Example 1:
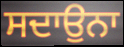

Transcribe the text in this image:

ਸਦਾਉਨਾ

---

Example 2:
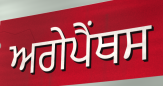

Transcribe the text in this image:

ਅਗੇਪੈਂਥਸ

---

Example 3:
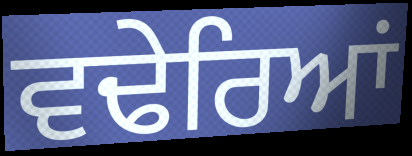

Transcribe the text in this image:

ਵਢੇਰਿਆਂ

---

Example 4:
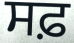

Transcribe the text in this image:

ਸਫ਼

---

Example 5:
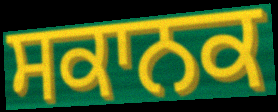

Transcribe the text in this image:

ਸਕਾਨਕ